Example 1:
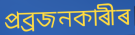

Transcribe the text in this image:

প্ৰব্ৰজনকাৰীৰ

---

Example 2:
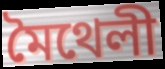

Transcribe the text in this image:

মৈথেলী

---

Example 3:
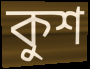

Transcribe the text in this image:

কুশ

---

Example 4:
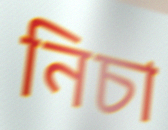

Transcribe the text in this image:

নিচা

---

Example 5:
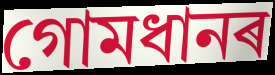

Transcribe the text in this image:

গোমধানৰ